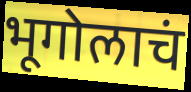
भूगोलाचं